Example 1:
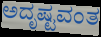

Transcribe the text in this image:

ಅದೃಷ್ಟವಂತ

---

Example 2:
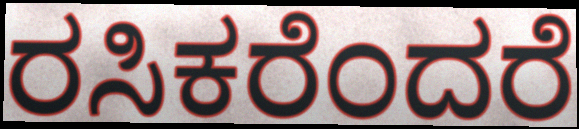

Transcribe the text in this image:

ರಸಿಕರೆಂದರೆ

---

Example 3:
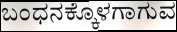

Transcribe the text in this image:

ಬಂಧನಕ್ಕೊಳಗಾಗುವ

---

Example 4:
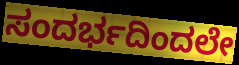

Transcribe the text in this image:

ಸಂದರ್ಭದಿಂದಲೇ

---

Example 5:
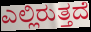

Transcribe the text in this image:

ಎಲ್ಲಿರುತ್ತದೆ